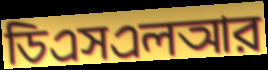
ডিএসএলআর